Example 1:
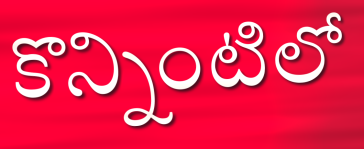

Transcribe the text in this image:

కొన్నింటిలో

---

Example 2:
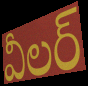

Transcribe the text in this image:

వీలర్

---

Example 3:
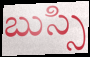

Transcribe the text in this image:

బుస్సి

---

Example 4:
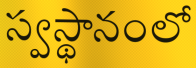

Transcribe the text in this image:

స్వస్థానంలో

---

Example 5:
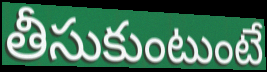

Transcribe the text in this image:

తీసుకుంటుంటే